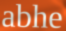
abhe